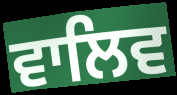
ਵਾਲਿਵ